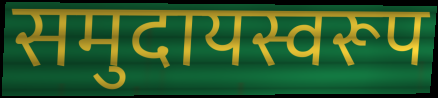
समुदायस्वरूप